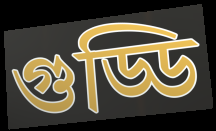
গুড্ডি